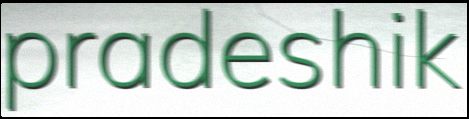
pradeshik